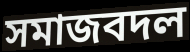
সমাজবদল